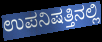
ಉಪನಿಷತ್ತಿನಲ್ಲಿ